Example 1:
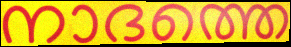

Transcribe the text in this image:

നാദത്തെ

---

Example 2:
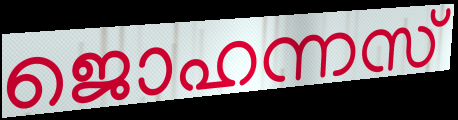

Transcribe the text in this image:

ജൊഹന്നസ്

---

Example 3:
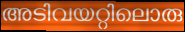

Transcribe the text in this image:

അടിവയറ്റിലൊരു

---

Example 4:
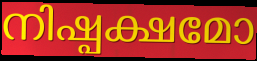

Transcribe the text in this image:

നിഷ്പക്ഷമോ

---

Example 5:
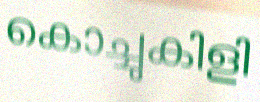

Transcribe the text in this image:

കൊച്ചുകിളി